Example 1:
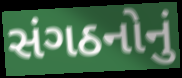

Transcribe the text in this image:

સંગઠનોનું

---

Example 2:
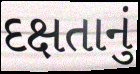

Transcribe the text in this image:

દક્ષતાનું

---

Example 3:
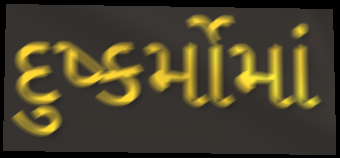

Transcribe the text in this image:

દુષ્કર્મોમાં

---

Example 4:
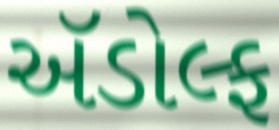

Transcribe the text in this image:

ઍડોલ્ફ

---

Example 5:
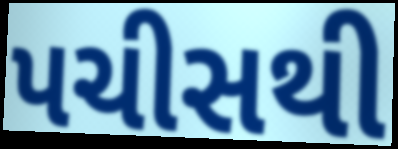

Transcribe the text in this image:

પચીસથી